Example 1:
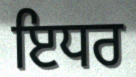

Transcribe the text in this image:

ਇਧਰ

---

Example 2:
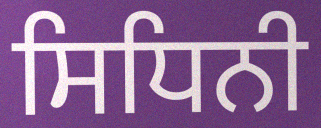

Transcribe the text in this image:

ਸਿਧਿਨੀ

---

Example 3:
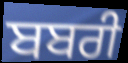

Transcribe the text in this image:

ਬਬਰੀ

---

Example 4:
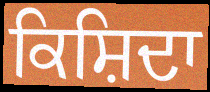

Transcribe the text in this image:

ਕਿਸ਼ਿਦਾ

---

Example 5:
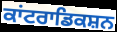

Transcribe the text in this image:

ਕਾਂਟਰਾਡਿਕਸ਼ਨ